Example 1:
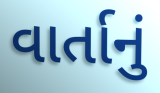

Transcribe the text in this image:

વાર્તાનું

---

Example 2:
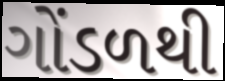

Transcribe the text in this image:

ગોંડળથી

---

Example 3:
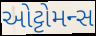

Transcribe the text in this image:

ઓટ્ટોમન્સ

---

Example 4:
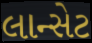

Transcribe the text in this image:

લાન્સેટ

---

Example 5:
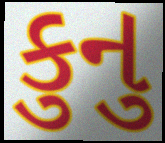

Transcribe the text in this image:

કુનુ